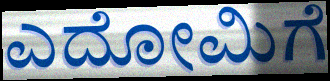
ಎದೋಮಿಗೆ